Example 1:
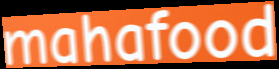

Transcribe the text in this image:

mahafood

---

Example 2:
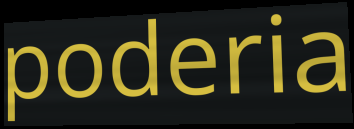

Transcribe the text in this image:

poderia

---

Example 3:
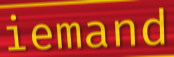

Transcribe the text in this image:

iemand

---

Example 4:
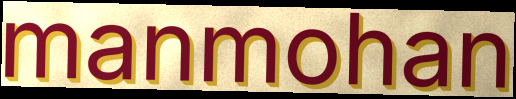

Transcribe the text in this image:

manmohan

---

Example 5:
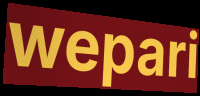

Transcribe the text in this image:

wepari